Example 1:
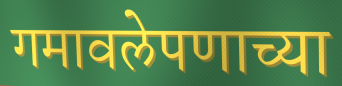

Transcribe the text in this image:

गमावलेपणाच्या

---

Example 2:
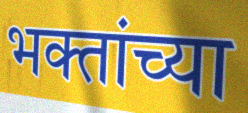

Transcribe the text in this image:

भक्तांच्या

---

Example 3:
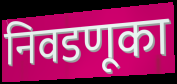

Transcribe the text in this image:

निवडणूका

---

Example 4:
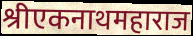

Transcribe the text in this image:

श्रीएकनाथमहाराज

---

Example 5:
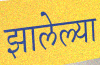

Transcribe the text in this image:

झालेल्या